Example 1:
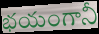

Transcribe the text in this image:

భయంగానీ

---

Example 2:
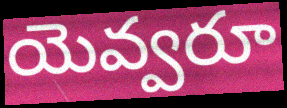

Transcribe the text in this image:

యెవ్వరూ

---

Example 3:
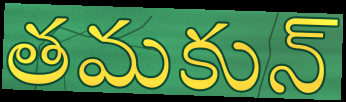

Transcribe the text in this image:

తమకున్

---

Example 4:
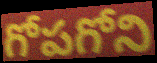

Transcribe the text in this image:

గోపగోని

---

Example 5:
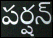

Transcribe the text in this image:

పర్షన్